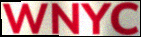
WNYC